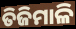
ତିଜିମାଳି